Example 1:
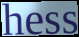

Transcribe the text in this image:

hess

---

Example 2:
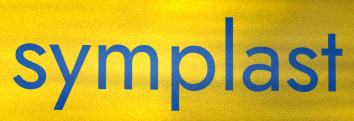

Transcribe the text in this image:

symplast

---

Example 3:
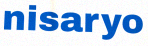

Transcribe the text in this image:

nisaryo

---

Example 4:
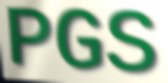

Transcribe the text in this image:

PGS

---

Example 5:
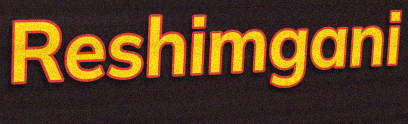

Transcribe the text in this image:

Reshimgani